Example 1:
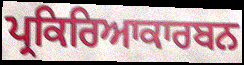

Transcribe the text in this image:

ਪ੍ਰਕਿਰਿਆਕਾਰਬਨ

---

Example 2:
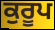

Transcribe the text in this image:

ਕੁਰੂਪ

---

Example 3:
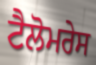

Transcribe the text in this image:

ਟੈਲੋਮਰੇਸ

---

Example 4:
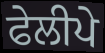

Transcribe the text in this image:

ਫੇਲੀਪੇ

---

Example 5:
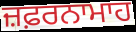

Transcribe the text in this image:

ਜ਼ਫ਼ਰਨਾਮਾਹ